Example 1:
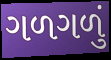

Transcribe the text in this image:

ગળગળું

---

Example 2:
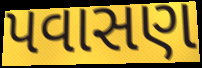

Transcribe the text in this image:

પવાસણ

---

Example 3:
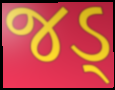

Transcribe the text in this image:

જડ્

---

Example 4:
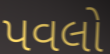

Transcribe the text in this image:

પવલો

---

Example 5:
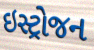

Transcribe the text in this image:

ઇસ્ટ્રોજન